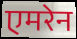
एमरेन